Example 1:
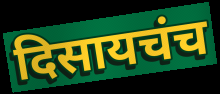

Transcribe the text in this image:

दिसायचंच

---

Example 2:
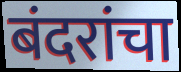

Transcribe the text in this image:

बंदरांचा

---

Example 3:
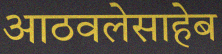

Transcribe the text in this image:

आठवलेसाहेब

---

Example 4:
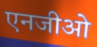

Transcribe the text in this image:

एनजीओ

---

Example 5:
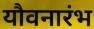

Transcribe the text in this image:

यौवनारंभ